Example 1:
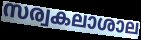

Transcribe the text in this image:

സര്വകലാശാല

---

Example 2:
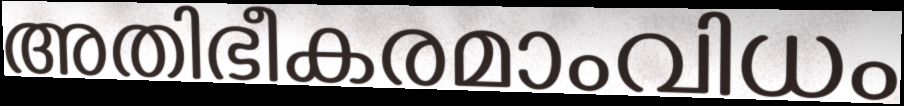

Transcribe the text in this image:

അതിഭീകരമാംവിധം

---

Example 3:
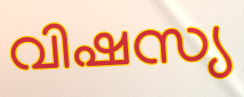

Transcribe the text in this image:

വിഷസ്യ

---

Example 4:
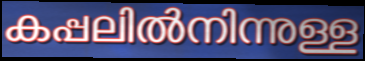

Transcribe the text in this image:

കപ്പലിൽനിന്നുള്ള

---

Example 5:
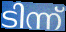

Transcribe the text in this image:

ടിന്ന്